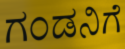
ಗಂಡನಿಗೆ